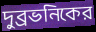
দুব্রভনিকের